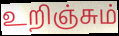
உறிஞ்சும்